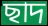
ছাদ